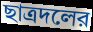
ছাত্রদলের